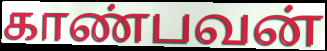
காண்பவன்